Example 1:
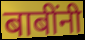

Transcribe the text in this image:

बाबींनी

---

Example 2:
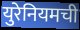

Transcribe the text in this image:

युरेनियमची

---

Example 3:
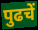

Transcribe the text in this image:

पुढचें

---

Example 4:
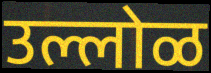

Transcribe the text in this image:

उल्लोळ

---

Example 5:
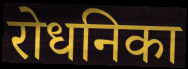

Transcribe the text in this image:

रोधनिका